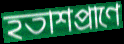
হতাশপ্রাণে